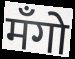
मँगो